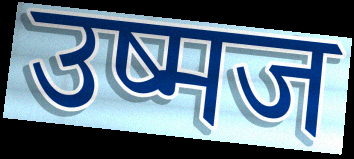
उष्मज